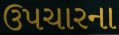
ઉપચારના